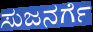
ಸುಜನರ್ಗೆ